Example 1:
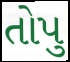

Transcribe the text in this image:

તોપુ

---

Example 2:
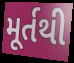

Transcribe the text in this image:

મૂર્તથી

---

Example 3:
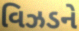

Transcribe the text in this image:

વિઝડને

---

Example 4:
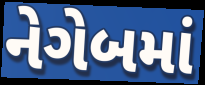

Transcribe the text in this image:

નેગેબમાં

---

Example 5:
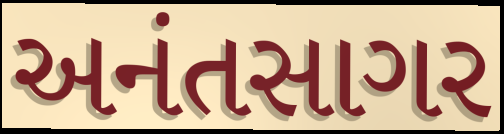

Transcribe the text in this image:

અનંતસાગર